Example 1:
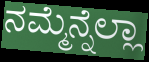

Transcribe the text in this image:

ನಮ್ಮೆನ್ನೆಲ್ಲಾ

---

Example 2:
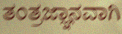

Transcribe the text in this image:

ತಂತ್ರಜ್ಞಾನವಾಗಿ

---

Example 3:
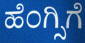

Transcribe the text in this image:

ಹೆಂಗ್ಸಿಗೆ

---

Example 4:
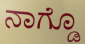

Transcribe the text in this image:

ನಾಗ್ಡೊ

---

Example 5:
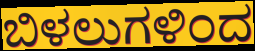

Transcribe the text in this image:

ಬಿಳಲುಗಳಿಂದ